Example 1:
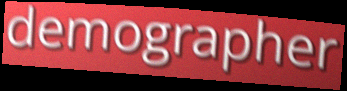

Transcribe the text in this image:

demographer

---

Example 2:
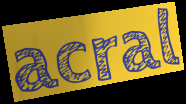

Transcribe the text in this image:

acral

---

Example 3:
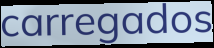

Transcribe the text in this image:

carregados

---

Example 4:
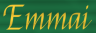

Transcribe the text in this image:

Emmai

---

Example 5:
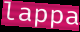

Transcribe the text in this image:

lappa